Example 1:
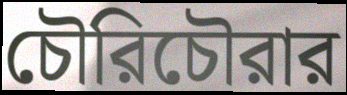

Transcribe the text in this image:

চৌরিচৌরার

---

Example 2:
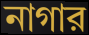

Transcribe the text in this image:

নাগার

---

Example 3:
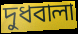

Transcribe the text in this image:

দুধবালা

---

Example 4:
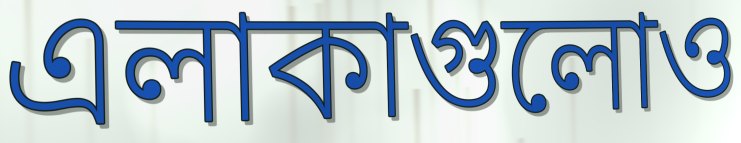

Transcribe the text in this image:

এলাকাগুলোও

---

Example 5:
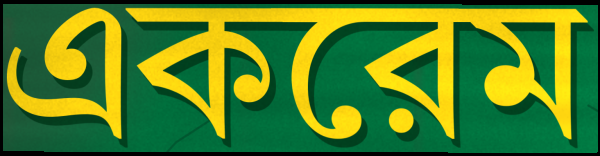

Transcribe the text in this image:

একরেম